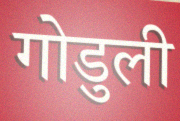
गोडुली